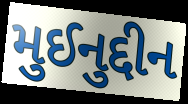
મુઈનુદ્દીન